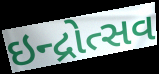
ઇન્દ્રોત્સવ